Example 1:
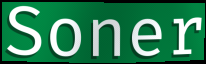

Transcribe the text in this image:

Soner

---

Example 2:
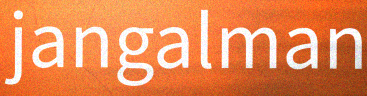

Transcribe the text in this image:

jangalman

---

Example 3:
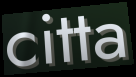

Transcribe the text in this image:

citta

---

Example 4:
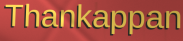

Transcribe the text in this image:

Thankappan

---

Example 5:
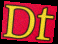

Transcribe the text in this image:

Dt